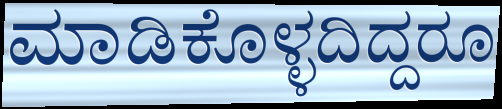
ಮಾಡಿಕೊಳ್ಳದಿದ್ದರೂ